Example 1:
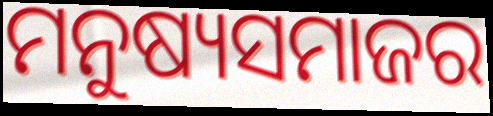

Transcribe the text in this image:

ମନୁଷ୍ୟସମାଜର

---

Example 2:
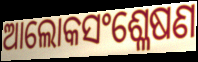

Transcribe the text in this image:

ଆଲୋକସଂଶ୍ଳେଷଣ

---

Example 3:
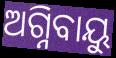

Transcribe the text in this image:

ଅଗ୍ନିବାୟୁ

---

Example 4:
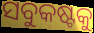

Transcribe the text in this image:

ସବୁକଷ୍ଟକୁ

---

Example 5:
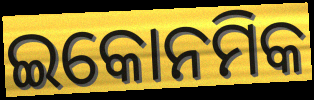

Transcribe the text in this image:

ଇକୋନମିକ